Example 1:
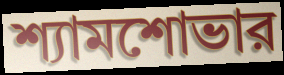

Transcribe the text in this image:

শ্যামশোভার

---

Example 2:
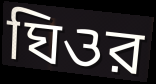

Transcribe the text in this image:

ঘিওর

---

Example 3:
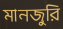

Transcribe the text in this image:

মানজুরি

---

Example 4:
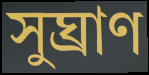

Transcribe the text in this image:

সুঘ্রাণ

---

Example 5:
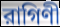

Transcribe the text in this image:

রাগিণী